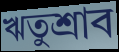
ঋতুশ্রাব